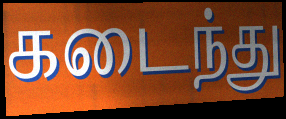
கடைந்து